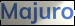
Majuro